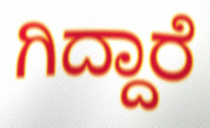
ಗಿದ್ದಾರೆ